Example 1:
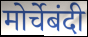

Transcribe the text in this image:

मोर्चेबंदी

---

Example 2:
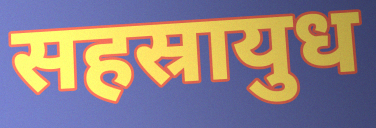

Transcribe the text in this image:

सहस्रायुध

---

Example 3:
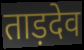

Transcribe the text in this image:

ताड़देव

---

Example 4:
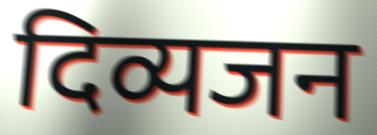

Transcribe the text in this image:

दिव्यजन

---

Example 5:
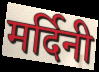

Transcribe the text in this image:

मर्दिनी